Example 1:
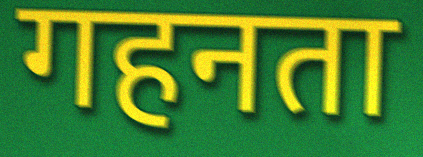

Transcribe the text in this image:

गहनता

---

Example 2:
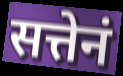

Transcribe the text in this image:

सत्तेनं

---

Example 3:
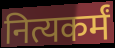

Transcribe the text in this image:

नित्यकर्मं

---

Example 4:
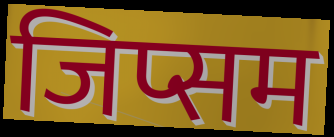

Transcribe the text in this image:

जिप्सम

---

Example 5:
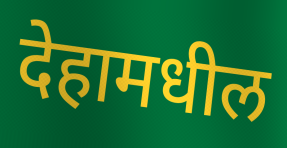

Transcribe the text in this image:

देहामधील